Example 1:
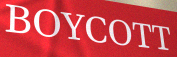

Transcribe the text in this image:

BOYCOTT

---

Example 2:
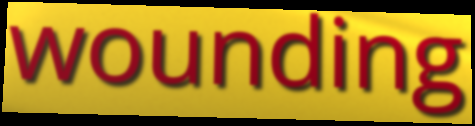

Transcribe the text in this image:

wounding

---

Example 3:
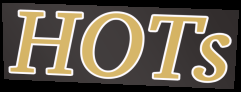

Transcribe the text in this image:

HOTs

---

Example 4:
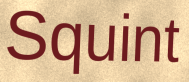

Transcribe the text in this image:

Squint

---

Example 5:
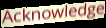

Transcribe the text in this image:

Acknowledge